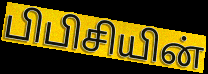
பிபிசியின்